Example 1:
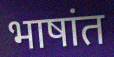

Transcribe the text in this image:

भाषांत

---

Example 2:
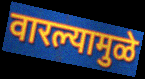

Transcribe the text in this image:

वारल्यामुळे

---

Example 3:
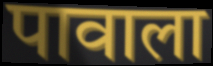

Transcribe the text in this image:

पावाला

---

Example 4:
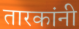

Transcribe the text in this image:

तारकांनी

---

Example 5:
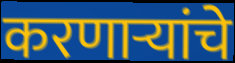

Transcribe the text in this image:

करणाऱ्यांचे